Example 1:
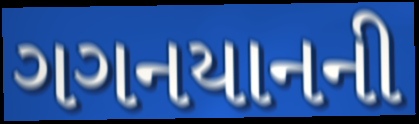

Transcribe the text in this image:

ગગનયાનની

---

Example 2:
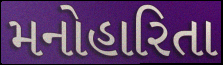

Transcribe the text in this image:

મનોહારિતા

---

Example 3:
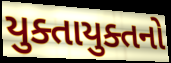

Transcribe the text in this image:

યુક્તાયુક્તનો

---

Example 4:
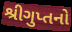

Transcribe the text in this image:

શ્રીગુપ્તનો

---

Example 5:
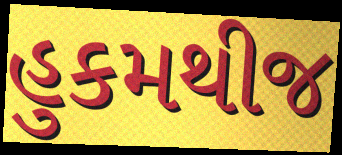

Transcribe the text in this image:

હુકમથીજ